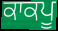
ਕਾਕਪੂ